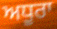
ਅਧੂਰਾ